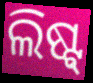
ଲିଷ୍ଟ୍